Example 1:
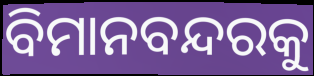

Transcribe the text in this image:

ବିମାନବନ୍ଦରକୁ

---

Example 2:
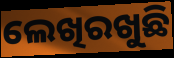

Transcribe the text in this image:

ଲେଖିରଖୁଛି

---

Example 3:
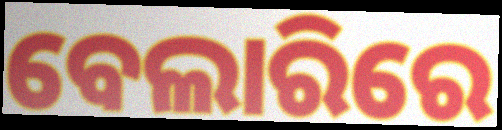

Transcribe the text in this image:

ବେଲାରିରେ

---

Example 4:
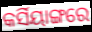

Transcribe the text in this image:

କର୍ସିୟାଙ୍ଗରେ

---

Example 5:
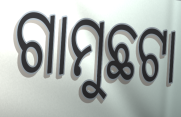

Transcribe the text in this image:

ଗାମୁଛଟା